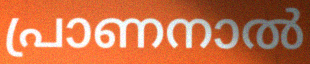
പ്രാണനാൽ